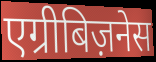
एग्रीबिज़नेस